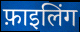
फ़ाइलिंग